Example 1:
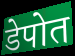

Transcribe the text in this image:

डेपोत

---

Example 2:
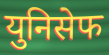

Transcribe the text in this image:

युनिसेफ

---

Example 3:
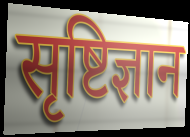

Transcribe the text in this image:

सृष्टिज्ञान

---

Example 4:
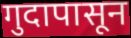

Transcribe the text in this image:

गुदापासून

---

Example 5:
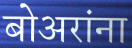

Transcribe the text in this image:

बोअरांना